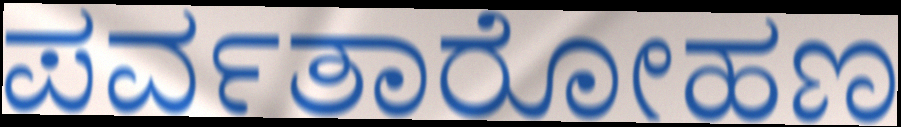
ಪರ್ವತಾರೋಹಣ